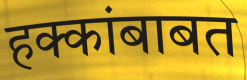
हक्कांबाबत